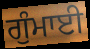
ਗੁੰਮਾਈ